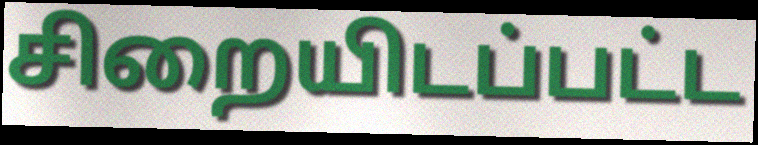
சிறையிடப்பட்ட